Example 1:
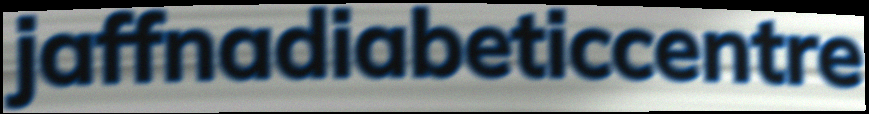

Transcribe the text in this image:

jaffnadiabeticcentre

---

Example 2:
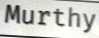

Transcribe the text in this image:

Murthy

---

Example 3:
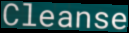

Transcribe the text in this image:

Cleanse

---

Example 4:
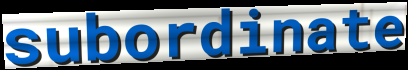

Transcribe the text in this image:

subordinate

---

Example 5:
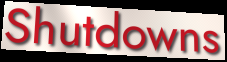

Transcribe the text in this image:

Shutdowns